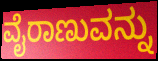
ವೈರಾಣುವನ್ನು